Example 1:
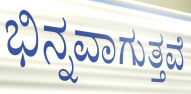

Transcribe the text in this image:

ಭಿನ್ನವಾಗುತ್ತವೆ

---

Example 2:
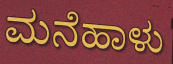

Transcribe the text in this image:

ಮನೆಹಾಳು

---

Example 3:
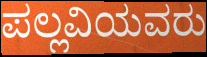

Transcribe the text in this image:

ಪಲ್ಲವಿಯವರು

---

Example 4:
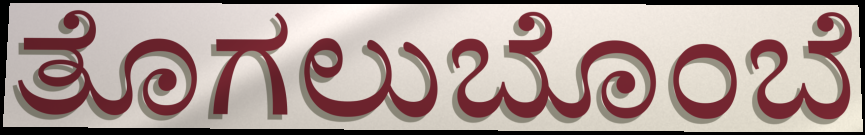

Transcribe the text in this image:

ತೊಗಲುಬೊಂಬೆ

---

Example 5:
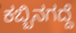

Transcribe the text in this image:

ಕಬ್ಬಿನಗದ್ದೆ